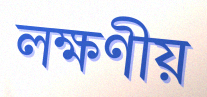
লক্ষণীয়